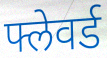
फ्लेवर्ड